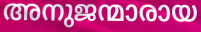
അനുജന്മാരായ